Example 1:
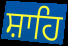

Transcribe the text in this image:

ਸ਼ਾਹਿ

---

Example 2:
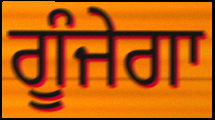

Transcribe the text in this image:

ਗੂੰਜੇਗਾ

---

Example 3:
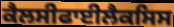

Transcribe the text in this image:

ਕੈਲਸੀਫਾਈਲੈਕਸਿਸ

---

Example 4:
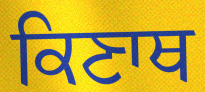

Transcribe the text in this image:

ਕਿਣਾਥ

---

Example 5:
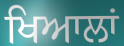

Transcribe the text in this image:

ਖਿਆਲਾਂ